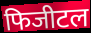
फिजीटल